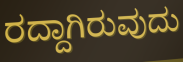
ರದ್ದಾಗಿರುವುದು